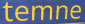
temne